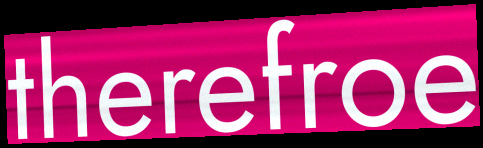
therefroe